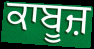
ਕਾਬੂਜ਼